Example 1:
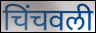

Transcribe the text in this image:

चिंचवली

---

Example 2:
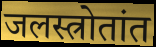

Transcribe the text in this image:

जलस्त्रोतांत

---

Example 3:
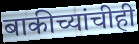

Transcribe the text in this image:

बाकीच्यांचीही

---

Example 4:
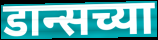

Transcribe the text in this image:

डान्सच्या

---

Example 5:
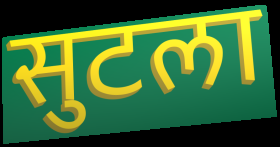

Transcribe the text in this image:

सुटला